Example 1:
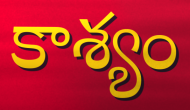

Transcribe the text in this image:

కాశ్యం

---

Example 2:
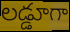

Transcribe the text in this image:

లడ్డూగా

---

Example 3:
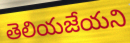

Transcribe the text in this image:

తెలియజేయని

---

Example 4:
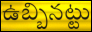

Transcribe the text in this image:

ఉబ్బినట్టు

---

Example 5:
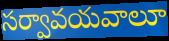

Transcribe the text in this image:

సర్వావయవాలూ